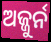
ଅଜ୍ଜୁର୍ନ